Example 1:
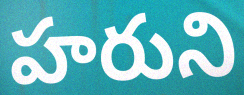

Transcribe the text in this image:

హరుని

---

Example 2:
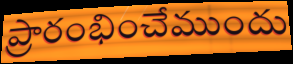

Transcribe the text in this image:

ప్రారంభించేముందు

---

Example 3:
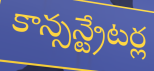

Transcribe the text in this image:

కాన్సన్ట్రేటర్ల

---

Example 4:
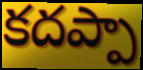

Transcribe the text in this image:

కదప్పా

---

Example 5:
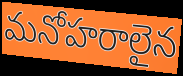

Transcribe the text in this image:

మనోహరాలైన